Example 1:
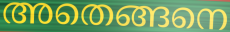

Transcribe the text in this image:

അതെങ്ങനെ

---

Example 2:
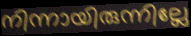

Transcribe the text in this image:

നിന്നായിരുന്നില്ലേ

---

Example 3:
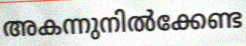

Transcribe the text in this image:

അകന്നുനിൽക്കേണ്ട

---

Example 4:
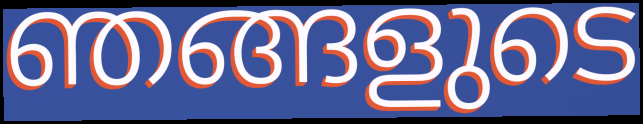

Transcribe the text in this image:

ഞങ്ങളുടെ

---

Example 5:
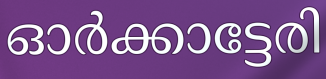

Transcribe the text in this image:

ഓർക്കാട്ടേരി